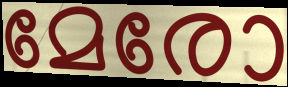
മേരോ